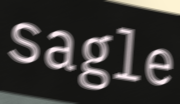
sagle